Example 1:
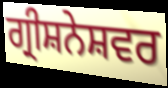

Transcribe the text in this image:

ਗ੍ਰੀਸ਼ਨੇਸ਼ਵਰ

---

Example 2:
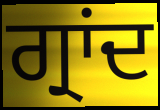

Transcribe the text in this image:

ਗ੍ਰਾਂਦ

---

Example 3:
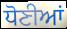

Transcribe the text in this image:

ਧੋਣੀਆਂ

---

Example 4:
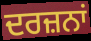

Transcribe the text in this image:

ਦਰਜ਼ਨਾਂ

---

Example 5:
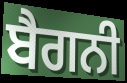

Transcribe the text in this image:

ਬੈਗਨੀ